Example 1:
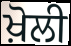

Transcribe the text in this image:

ਖ਼ੋਲੀ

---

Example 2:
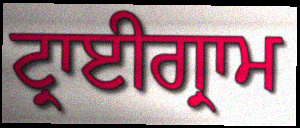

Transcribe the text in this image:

ਟ੍ਰਾਈਗ੍ਰਾਮ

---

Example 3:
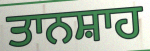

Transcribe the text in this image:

ਤਾਨਸ਼ਾਹ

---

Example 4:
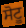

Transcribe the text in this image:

ਸੋਟੂ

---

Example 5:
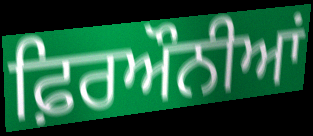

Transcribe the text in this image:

ਫ਼ਿਰਔਨੀਆਂ